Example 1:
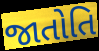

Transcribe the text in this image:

જાતોતિ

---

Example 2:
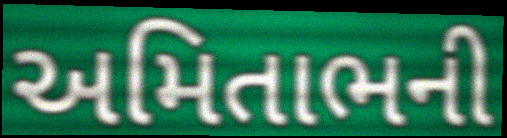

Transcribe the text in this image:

અમિતાભની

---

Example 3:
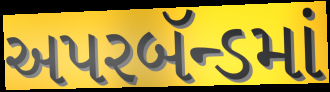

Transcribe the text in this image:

અપરબૅન્ડમાં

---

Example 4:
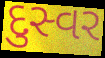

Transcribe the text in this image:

દુસ્વર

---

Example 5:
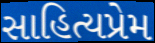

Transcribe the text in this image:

સાહિત્યપ્રેમ